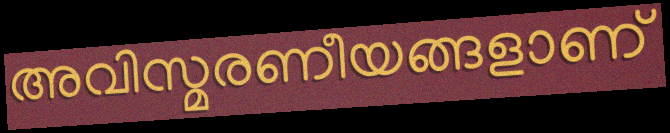
അവിസ്മരണീയങ്ങളാണ്